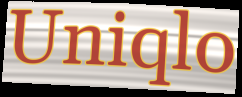
Uniqlo